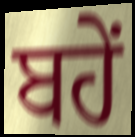
ਬਹੇਂ